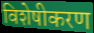
विशेषीकरण